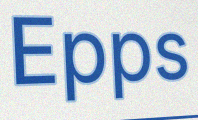
Epps